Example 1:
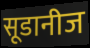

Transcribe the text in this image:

सूडानीज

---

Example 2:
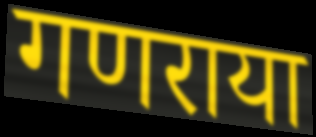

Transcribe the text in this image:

गणराया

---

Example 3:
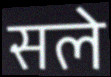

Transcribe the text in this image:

सले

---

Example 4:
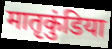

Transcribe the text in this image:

मातृकुंडिया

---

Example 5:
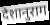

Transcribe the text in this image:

देशानुराग